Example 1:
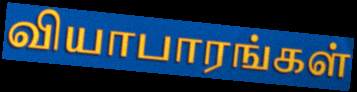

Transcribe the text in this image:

வியாபாரங்கள்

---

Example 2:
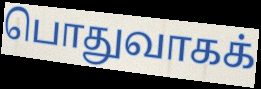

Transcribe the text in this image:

பொதுவாகக்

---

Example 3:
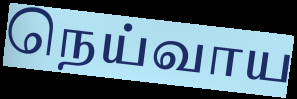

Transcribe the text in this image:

நெய்வாய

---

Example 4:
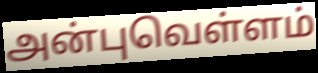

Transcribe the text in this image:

அன்புவெள்ளம்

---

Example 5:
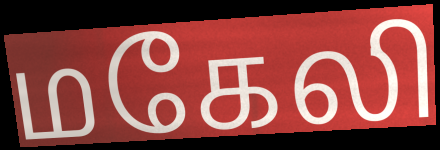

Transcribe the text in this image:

மகேலி